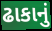
ઢાકાનું